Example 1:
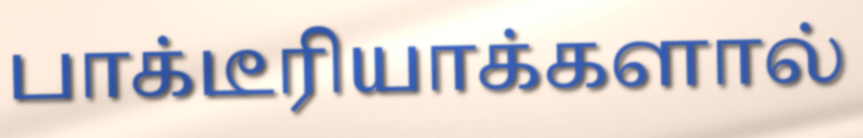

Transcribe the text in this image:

பாக்டீரியாக்களால்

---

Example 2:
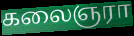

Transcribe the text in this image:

கலைஞரா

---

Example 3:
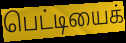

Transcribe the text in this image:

பெட்டியைக்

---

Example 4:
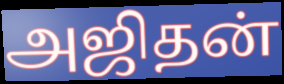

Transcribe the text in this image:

அஜிதன்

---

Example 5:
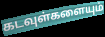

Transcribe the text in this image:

கடவுள்களையும்